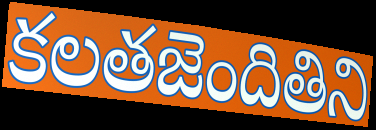
కలతజెందితిని